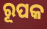
ରୂପକ